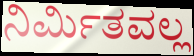
ನಿರ್ಮಿತವಲ್ಲ